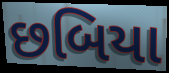
છબિયા